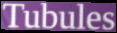
Tubules